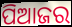
ପିଆଜର